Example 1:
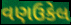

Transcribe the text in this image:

વણઉકેલ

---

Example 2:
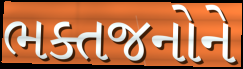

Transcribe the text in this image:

ભક્તજનોને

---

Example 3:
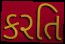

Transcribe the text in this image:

કરતિ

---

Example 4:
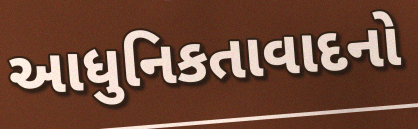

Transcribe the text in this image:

આધુનિકતાવાદનો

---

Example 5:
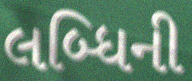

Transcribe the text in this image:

લબ્ધિની